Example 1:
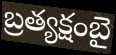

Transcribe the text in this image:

బ్రత్యక్షంబై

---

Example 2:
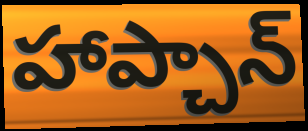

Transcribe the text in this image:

హాప్చాన్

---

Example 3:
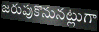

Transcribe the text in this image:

జరుపుకొనునట్లుగా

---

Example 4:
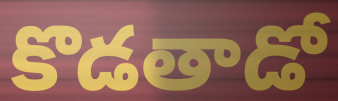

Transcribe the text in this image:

కొడతాడో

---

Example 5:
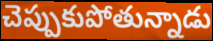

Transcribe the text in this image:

చెప్పుకుపోతున్నాడు